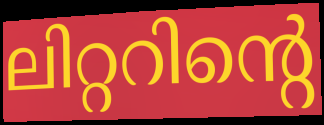
ലിറ്ററിന്റെ